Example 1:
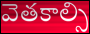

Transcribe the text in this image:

వెతకాల్సి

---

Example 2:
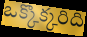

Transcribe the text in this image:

ఒక్కొక్కరిది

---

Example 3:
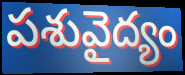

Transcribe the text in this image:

పశువైద్యం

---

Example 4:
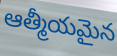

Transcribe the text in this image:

ఆత్మీయమైన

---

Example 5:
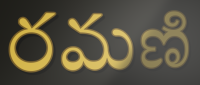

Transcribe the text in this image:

రమణి